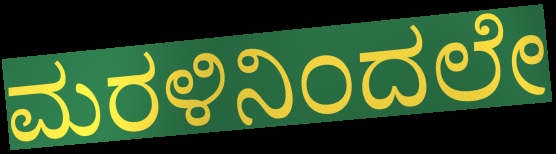
ಮರಳಿನಿಂದಲೇ